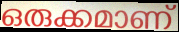
ഒരുക്കമാണ്